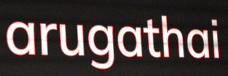
arugathai